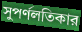
সুপর্ণলতিকার